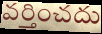
వర్తించదు